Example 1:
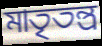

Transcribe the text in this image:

মাতৃতন্ত্র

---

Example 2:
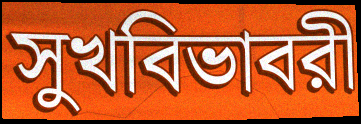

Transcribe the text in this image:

সুখবিভাবরী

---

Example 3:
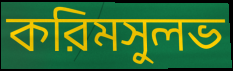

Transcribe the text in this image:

করিমসুলভ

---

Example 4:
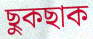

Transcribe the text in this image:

ছুকছাক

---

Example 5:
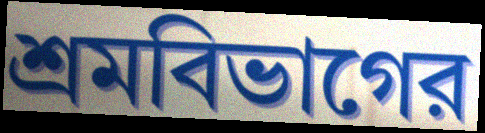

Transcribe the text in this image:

শ্রমবিভাগের